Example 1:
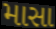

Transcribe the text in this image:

માસા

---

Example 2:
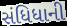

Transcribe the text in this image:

સંધિધાની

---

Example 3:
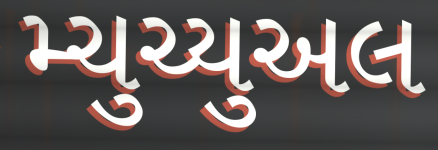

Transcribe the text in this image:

મ્ચુચ્યુઅલ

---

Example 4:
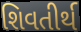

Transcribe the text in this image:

શિવતીર્થ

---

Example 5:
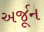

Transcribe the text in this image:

અર્જૂન